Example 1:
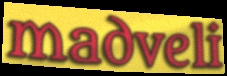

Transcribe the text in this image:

madveli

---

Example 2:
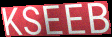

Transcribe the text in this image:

KSEEB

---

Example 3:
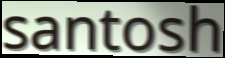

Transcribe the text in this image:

santosh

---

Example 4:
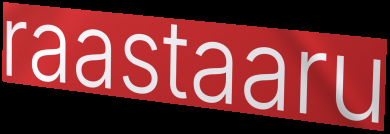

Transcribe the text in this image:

raastaaru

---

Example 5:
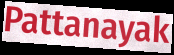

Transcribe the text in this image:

Pattanayak